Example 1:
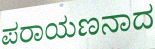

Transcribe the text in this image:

ಪರಾಯಣನಾದ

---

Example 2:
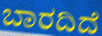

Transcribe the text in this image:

ಬಾರದಿದೆ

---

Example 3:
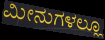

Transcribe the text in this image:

ಮೀನುಗಳಲ್ಲೂ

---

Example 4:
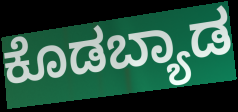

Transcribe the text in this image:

ಕೊಡಬ್ಯಾಡ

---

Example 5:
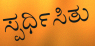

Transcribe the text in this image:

ಸ್ಪರ್ಧಿಸಿತು